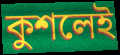
কুশলেই